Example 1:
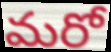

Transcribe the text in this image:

మరో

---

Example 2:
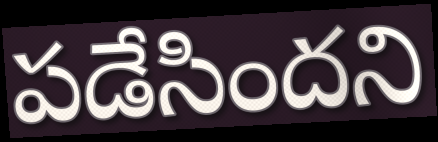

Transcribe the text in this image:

పడేసిందని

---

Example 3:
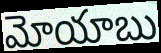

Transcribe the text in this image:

మోయాబు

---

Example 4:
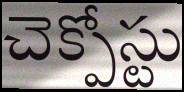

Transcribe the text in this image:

చెక్పోస్టు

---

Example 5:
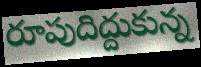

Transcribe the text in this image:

రూపుదిద్దుకున్న